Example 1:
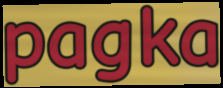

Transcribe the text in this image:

pagka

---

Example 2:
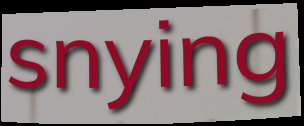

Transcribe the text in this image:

snying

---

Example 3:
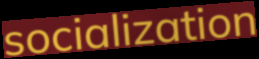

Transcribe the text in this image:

socialization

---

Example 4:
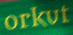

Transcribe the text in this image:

orkut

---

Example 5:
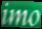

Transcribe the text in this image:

imo